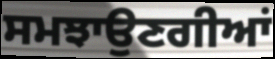
ਸਮਝਾਉਣਗੀਆਂ